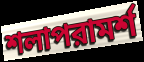
শলাপরামর্শ